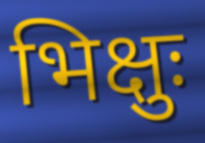
भिक्षुः